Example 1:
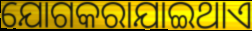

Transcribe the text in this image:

ଯୋଗକରାଯାଇଥାଏ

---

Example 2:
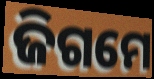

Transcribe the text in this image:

ଜିଗମେ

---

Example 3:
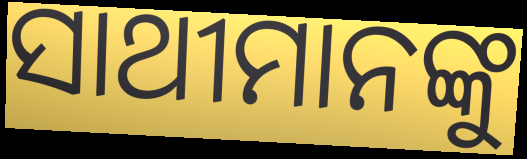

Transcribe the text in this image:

ସାଥୀମାନଙ୍କୁ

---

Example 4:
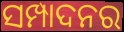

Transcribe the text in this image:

ସମ୍ପାଦନର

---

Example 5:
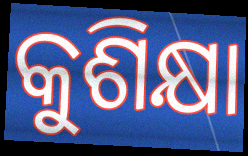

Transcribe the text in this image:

କୁଶିକ୍ଷା